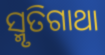
ସ୍ମୃତିଗାଥା